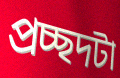
প্রচ্ছদটা